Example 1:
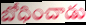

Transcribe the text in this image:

బోధించాడు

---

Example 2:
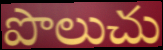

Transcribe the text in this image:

పొలుచు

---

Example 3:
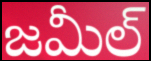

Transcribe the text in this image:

జమీల్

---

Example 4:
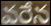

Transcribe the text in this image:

వరేన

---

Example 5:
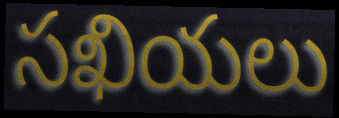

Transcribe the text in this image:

సఖియలు